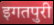
इगतपुरी